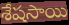
శేషసాయి